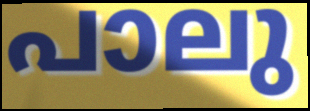
പാലു